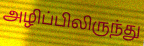
அழிப்பிலிருந்து